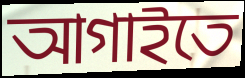
আগাইতে